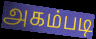
அகம்படி